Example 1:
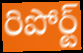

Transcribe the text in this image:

రిపోర్ట్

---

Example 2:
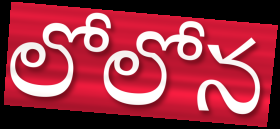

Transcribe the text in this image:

లోలోన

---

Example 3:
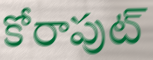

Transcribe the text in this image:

కోరాపుట్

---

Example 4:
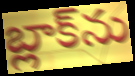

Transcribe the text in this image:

బ్లాక్‌ను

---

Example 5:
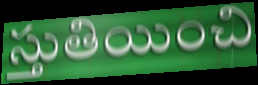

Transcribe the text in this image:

స్తుతియించి